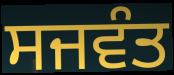
ਸਜਵੰਤ